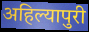
अहिल्यापुरी